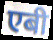
एबी